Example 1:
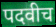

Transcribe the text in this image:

पदवीच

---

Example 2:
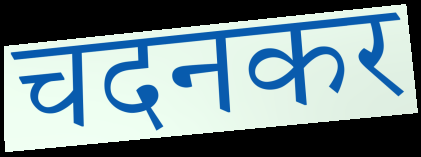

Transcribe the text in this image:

चदनकर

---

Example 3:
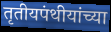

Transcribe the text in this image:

तृतीयपंथीयांच्या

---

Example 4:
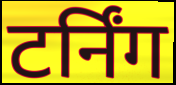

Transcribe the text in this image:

टर्निंग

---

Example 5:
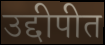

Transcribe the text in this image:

उद्दीपीत